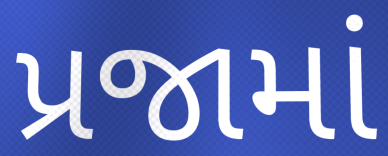
પ્રજામાં